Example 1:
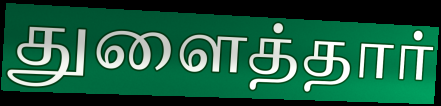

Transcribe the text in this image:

துளைத்தார்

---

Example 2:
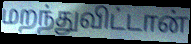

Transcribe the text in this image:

மறந்துவிட்டான்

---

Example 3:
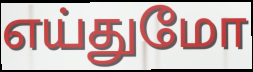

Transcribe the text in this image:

எய்துமோ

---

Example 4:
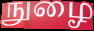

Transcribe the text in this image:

நுழை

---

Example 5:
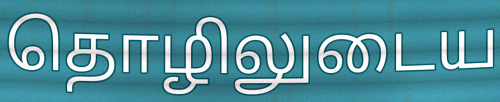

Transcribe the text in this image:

தொழிலுடைய